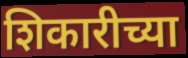
शिकारीच्या